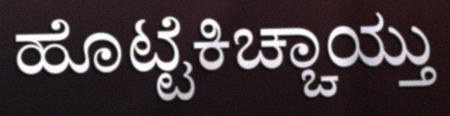
ಹೊಟ್ಟೆಕಿಚ್ಚಾಯ್ತು